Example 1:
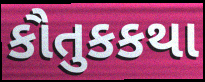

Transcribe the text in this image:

કૌતુકકથા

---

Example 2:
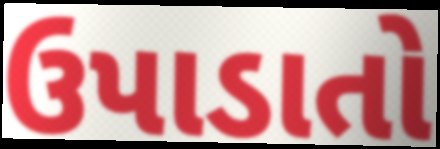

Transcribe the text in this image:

ઉપાડાતો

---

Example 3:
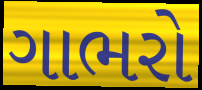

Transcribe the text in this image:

ગાભરો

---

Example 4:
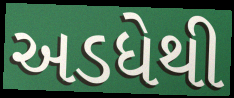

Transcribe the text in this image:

અડધેથી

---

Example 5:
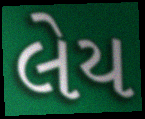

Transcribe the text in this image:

લેય